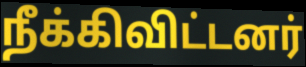
நீக்கிவிட்டனர்